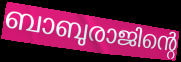
ബാബുരാജിന്റെ